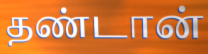
தண்டான்